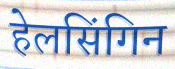
हेलसिंगिन